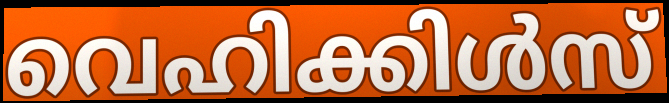
വെഹിക്കിൾസ്